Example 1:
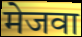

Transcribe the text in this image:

मेजवा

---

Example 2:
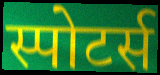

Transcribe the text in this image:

स्पोटर्स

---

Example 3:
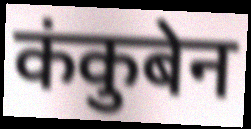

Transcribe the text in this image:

कंकुबेन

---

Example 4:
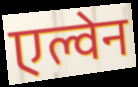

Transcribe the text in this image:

एल्वेन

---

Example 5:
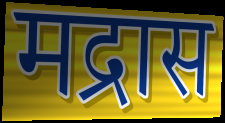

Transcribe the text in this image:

मद्रास